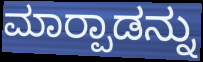
ಮಾರ‍್ಪಾಡನ್ನು